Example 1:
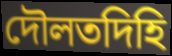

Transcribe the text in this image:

দৌলতদিহি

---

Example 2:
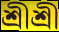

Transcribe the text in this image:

শ্রীশ্রী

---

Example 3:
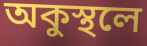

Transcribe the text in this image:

অকুস্থলে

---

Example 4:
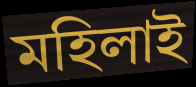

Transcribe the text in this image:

মহিলাই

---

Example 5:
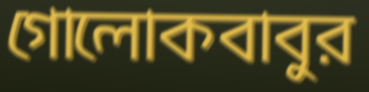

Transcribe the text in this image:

গোলোকবাবুর